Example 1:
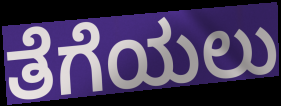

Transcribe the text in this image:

ತೆಗೆಯಲು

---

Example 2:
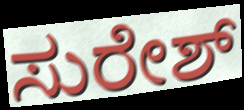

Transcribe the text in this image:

ಸುರೇಶ್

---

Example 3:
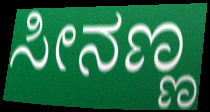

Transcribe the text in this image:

ಸೀನಣ್ಣ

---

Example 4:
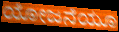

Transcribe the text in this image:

ಯೋಜನೆಯೂ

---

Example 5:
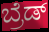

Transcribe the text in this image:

ಬ್ರೆಡ್